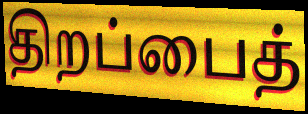
திறப்பைத்